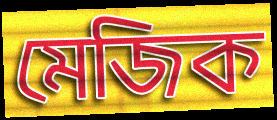
মেজিক